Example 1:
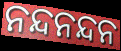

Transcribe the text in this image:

ନନ୍ଦନନ୍ଦନ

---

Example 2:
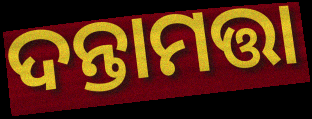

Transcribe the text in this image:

ଦନ୍ତାମତ୍ତା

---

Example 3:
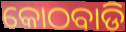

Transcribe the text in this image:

କୋଠବାଡି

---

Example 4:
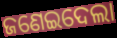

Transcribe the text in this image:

ଜଣେଇଦେଲା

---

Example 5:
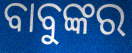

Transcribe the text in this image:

ବାବୁଙ୍କର